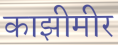
काझीमीर